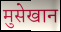
मुसेखान